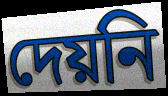
দেয়নি